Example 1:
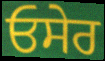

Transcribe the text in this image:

ਓਸੇਰ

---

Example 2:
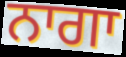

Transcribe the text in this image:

ਨਾਗਾ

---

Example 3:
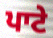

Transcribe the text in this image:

ਪਾਟੇ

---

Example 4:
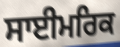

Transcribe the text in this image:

ਸਾਈਮਰਿਕ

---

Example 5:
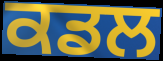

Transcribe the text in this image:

ਕਡਲ